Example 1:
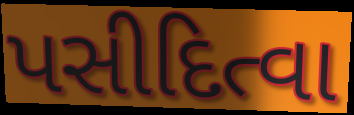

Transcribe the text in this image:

પસીદિત્વા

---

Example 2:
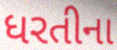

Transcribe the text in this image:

ધરતીના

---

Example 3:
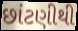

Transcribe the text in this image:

છાંટણીથી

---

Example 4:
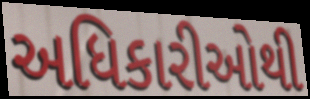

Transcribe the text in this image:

અધિકારીઓથી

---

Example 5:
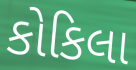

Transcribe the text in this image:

કોકિલા